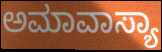
ಅಮಾವಾಸ್ಯಾ